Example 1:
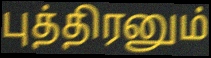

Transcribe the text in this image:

புத்திரனும்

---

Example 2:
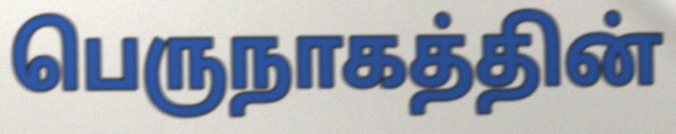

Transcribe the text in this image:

பெருநாகத்தின்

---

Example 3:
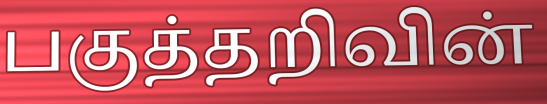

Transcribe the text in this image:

பகுத்தறிவின்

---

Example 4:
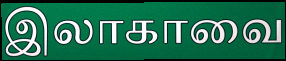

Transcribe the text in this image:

இலாகாவை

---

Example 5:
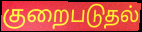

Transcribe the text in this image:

குறைபடுதல்